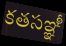
కతసఞ్ఞీ